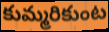
కుమ్మరికుంట